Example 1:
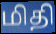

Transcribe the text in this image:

மிதி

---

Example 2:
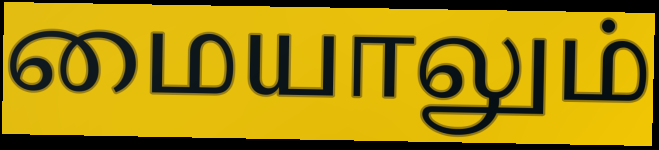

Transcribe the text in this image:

மையாலும்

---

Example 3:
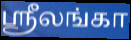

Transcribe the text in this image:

ஶ்ரீலங்கா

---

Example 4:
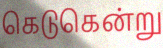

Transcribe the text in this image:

கெடுகென்று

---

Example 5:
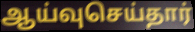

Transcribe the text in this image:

ஆய்வுசெய்தார்